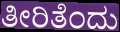
ತೀರಿತೆಂದು